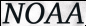
NOAA